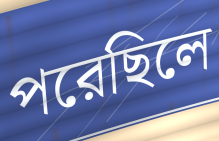
পরেছিলে